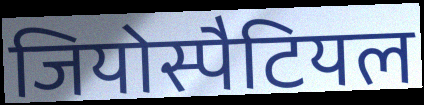
जियोस्पैटियल